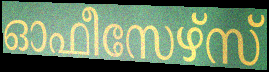
ഓഫീസേഴ്സ്